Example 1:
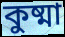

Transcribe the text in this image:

কুষ্মা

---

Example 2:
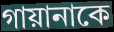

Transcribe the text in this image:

গায়ানাকে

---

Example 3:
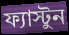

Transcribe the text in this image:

ফ্যাস্টুন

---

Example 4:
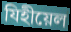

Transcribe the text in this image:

যিহীয়েল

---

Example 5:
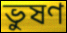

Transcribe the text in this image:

ভুষণ